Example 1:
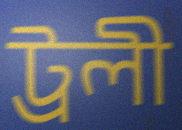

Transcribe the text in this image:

ট্ৰলী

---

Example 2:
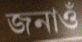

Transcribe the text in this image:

জনাওঁ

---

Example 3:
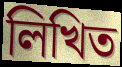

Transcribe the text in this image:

লিখিত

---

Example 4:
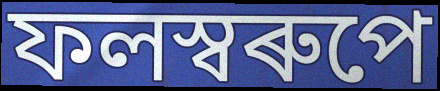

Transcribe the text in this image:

ফলস্বৰুপে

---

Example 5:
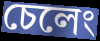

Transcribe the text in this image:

চেলেং